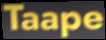
Taape